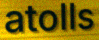
atolls